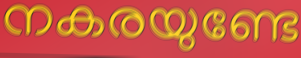
നകരയുണ്ടേ